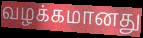
வழக்கமானது